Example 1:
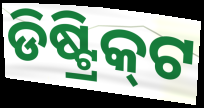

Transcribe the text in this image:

ଡିଷ୍ଟ୍ରିକ୍‌ଟ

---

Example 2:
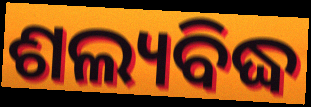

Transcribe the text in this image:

ଶଲ୍ୟବିଦ୍ଧ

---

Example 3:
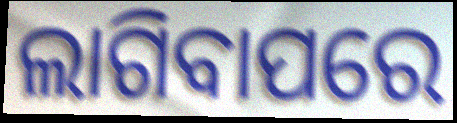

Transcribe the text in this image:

ଲାଗିବାପରେ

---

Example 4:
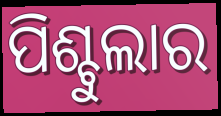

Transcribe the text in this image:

ପିଶ୍ଚୁଲାର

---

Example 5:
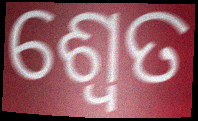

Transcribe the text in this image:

ଶ୍ଵେତ